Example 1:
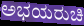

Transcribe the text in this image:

ಅಭಯರುಚಿ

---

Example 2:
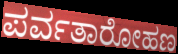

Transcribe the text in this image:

ಪರ್ವತಾರೋಹಣ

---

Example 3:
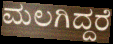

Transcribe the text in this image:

ಮಲಗಿದ್ದರೆ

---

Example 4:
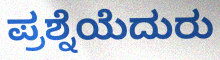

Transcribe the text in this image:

ಪ್ರಶ್ನೆಯೆದುರು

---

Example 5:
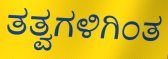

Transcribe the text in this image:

ತತ್ವಗಳಿಗಿಂತ